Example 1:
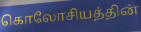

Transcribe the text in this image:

கொலோசியத்தின்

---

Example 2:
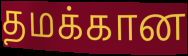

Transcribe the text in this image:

தமக்கான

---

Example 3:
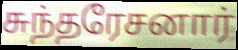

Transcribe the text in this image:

சுந்தரேசனார்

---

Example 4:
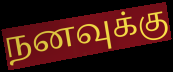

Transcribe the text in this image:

நனவுக்கு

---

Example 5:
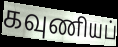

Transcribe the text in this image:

கவுணியப்